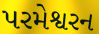
પરમેશ્વરન